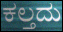
ಕಲ್ತದು